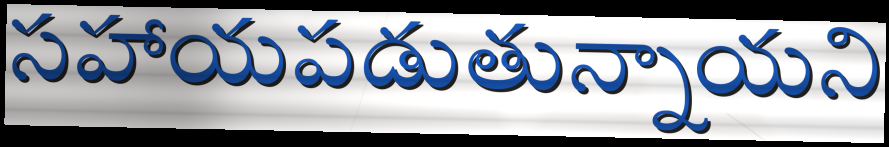
సహాయపడుతున్నాయని